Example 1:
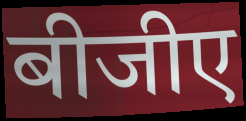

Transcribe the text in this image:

बीजीए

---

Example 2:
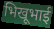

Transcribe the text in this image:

भिखूभाई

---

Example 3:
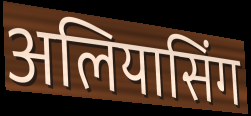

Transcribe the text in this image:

अलियासिंग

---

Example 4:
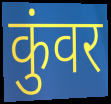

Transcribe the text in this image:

कुंवर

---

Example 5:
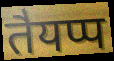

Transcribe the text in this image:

तैयप्प